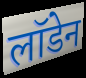
लॉडेन